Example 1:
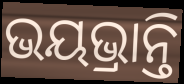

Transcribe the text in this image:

ଭୟଭ୍ରାନ୍ତି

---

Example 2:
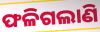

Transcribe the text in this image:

ଫଳିଗଲାଣି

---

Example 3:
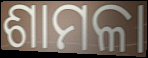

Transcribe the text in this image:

ଶାମଳା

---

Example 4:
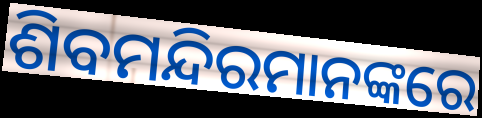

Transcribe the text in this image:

ଶିବମନ୍ଦିରମାନଙ୍କରେ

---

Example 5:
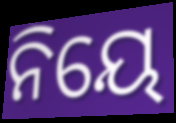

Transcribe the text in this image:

ନିୟେ